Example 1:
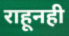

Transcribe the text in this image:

राहूनही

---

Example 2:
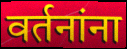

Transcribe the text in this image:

वर्तनांना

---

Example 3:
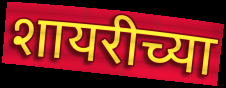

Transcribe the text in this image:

शायरीच्या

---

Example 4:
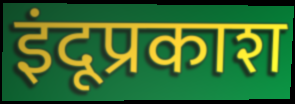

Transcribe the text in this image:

इंदूप्रकाश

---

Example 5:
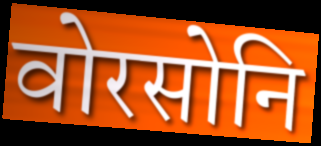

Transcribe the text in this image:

वोरसोनि